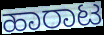
ಹಾರಾಟ